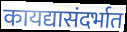
कायद्यासंदर्भात